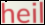
heil